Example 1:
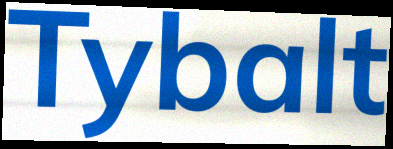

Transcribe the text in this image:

Tybalt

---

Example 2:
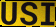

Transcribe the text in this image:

USI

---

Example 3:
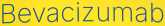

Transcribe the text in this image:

Bevacizumab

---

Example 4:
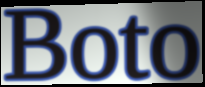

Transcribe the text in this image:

Boto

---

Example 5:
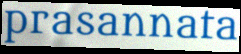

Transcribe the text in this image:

prasannata